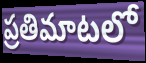
ప్రతిమాటలో